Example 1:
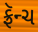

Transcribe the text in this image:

ફ્રૅન્ચ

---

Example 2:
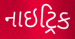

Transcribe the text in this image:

નાઇટ્રિક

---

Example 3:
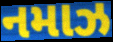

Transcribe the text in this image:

નમાઝ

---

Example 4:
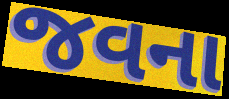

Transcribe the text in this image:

જવના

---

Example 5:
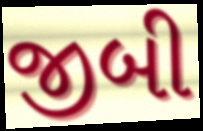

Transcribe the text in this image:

જીબી